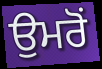
ਉਮਰੋਂ